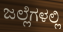
ಜಲ್ಲೆಗಳಲ್ಲಿ